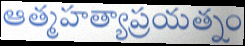
ఆత్మహత్యాప్రయత్నం